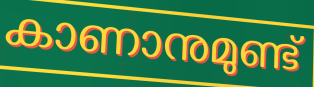
കാണാനുമുണ്ട്